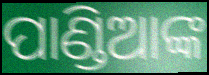
ପାଣ୍ଡିଆଙ୍କ